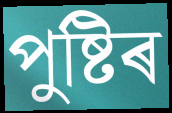
পুষ্টিৰ